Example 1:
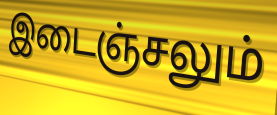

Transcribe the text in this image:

இடைஞ்சலும்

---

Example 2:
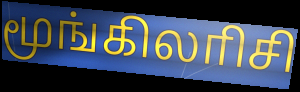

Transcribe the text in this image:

மூங்கிலரிசி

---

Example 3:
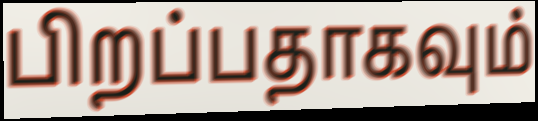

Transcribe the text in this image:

பிறப்பதாகவும்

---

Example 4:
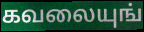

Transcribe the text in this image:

கவலையுங்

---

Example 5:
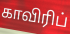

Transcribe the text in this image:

காவிரிப்